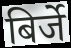
बिर्जे